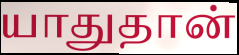
யாதுதான்